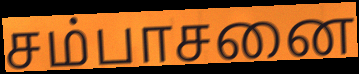
சம்பாசனை